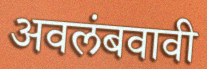
अवलंबवावी